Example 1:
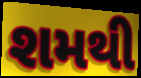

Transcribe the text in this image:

શમથી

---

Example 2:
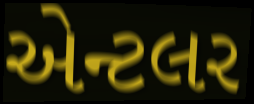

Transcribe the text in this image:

એન્ટલર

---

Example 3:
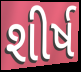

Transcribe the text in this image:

શીર્ષ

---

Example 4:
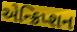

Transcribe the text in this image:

એન્ક્રિપ્શન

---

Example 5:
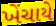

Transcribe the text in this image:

ખેંચાયે